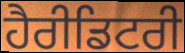
ਹੈਰੀਡਿਟਰੀ